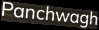
Panchwagh